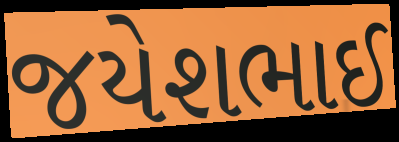
જયેશભાઈ